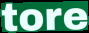
tore